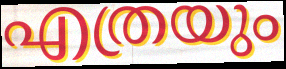
എത്രയും